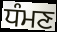
ਧੰਮਣ